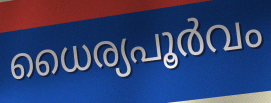
ധൈര്യപൂർവം